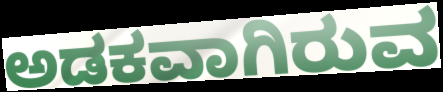
ಅಡಕವಾಗಿರುವ